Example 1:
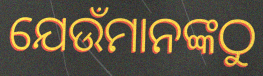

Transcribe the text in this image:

ଯେଉଁମାନଙ୍କଠୁ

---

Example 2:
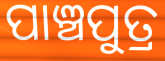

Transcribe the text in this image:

ପାଞ୍ଚପୁତ୍ର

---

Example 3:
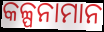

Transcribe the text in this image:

କଳ୍ପନାମାନ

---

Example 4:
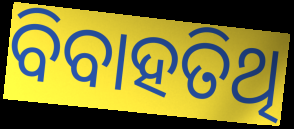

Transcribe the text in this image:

ବିବାହତିଥି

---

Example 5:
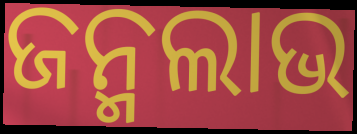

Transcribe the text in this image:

ଜନ୍ମଲାଭ